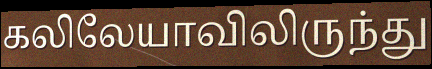
கலிலேயாவிலிருந்து